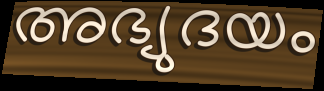
അഭ്യുദയം